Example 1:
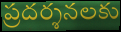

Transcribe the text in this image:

ప్రదర్శనలకు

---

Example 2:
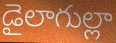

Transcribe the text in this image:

డైలాగుల్లా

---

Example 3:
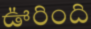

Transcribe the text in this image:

ఊరింది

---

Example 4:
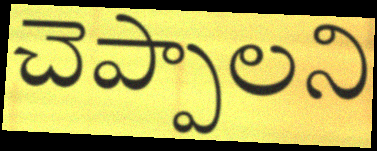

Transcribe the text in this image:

చెప్పాలని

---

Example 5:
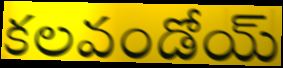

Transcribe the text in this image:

కలవండోయ్